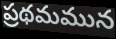
ప్రథమమున